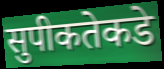
सुपीकतेकडे